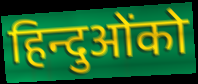
हिन्दुओंको